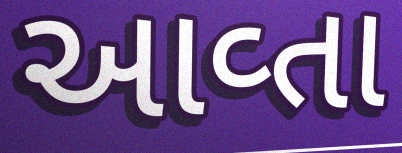
આવ્તા